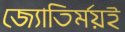
জ্যোতির্ময়ই